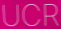
UCR